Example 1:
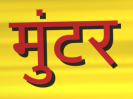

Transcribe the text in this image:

मुंटर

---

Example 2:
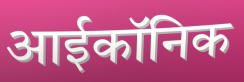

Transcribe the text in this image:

आईकॉनिक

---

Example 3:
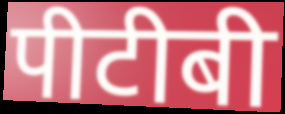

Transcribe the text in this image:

पीटीबी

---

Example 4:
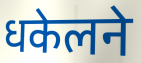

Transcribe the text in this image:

धकेलने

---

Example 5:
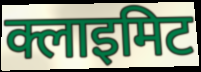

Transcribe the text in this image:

क्लाइमिट